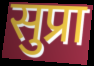
सुप्रा